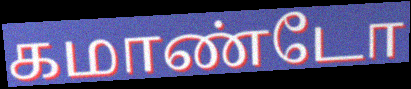
கமாண்டோ